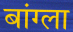
बांग्‍ला